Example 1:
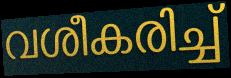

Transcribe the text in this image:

വശീകരിച്ച്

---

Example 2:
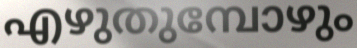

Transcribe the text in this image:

എഴുതുമ്പോഴും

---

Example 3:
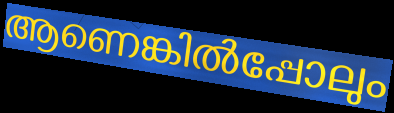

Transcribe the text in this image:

ആണെങ്കിൽപ്പോലും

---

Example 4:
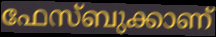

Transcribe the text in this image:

ഫേസ്ബുക്കാണ്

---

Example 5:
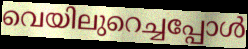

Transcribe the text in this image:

വെയിലുറെച്ചപ്പോൾ